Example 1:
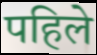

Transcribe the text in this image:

पहिले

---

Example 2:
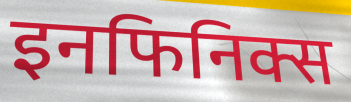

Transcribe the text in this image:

इनफिनिक्स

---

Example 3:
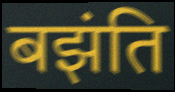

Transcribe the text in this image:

बझंति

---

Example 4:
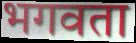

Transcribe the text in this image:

भगवता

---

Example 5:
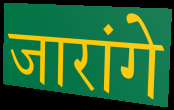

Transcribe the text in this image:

जारांगे